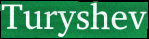
Turyshev